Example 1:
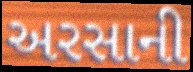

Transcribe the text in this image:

અરસાની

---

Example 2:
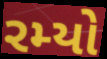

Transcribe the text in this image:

રમ્યો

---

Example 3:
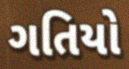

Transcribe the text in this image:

ગતિયો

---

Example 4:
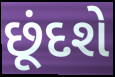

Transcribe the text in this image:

છૂંદશે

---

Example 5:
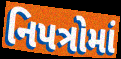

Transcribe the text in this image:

નિપત્રોમાં